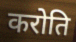
करोति